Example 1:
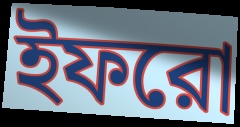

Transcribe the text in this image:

ইফরো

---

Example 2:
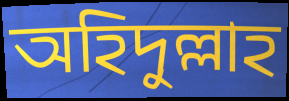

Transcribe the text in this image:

অহিদুল্লাহ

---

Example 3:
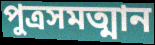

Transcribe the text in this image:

পুত্রসমত্মান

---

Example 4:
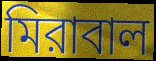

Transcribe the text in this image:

মিরাবাল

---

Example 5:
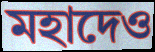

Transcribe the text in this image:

মহাদেও